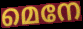
മെനേ